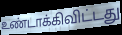
உண்டாக்கிவிட்டது